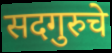
सदगुरुचे